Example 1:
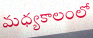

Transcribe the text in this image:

మధ్యకాలంలో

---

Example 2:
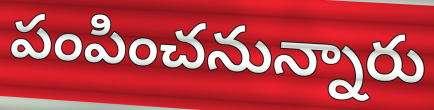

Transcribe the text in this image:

పంపించనున్నారు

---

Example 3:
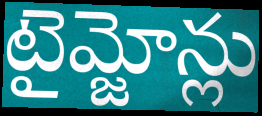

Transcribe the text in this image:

టైమ్జోన్లు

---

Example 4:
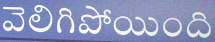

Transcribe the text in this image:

వెలిగిపోయింది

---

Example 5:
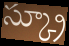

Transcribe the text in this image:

స్క్రూ